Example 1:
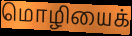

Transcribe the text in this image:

மொழியைக்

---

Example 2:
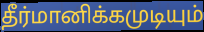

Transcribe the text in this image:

தீர்மானிக்கமுடியும்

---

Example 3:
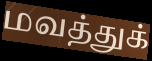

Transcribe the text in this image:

மவத்துக்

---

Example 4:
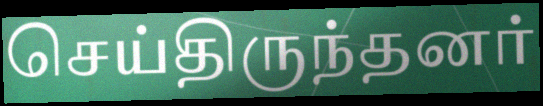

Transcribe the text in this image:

செய்திருந்தனர்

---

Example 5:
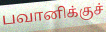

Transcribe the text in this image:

பவானிக்குச்